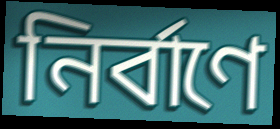
নির্বাণে